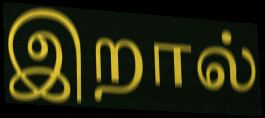
இறால்